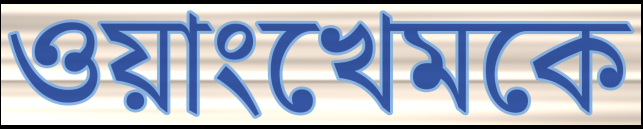
ওয়াংখেমকে